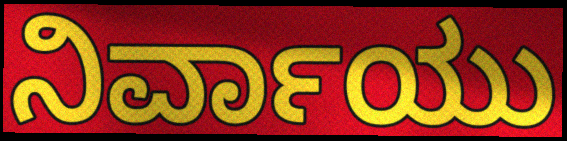
ನಿರ್ವಾಯು